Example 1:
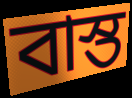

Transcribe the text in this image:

বাস্ত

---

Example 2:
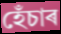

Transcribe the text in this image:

হেঁচাৰ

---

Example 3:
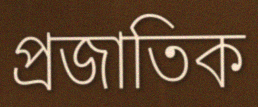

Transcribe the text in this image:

প্ৰজাতিক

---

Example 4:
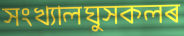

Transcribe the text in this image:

সংখ্যালঘুসকলৰ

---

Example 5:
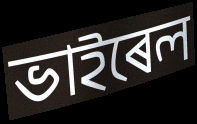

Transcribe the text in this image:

ভাইৰেল